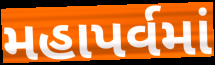
મહાપર્વમાં